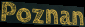
Poznan